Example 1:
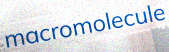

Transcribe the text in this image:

macromolecule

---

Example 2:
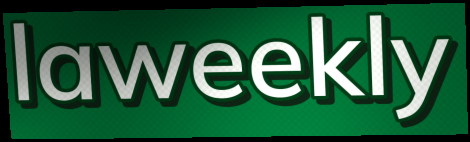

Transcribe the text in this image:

laweekly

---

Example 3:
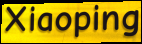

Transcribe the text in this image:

Xiaoping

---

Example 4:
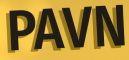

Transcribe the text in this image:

PAVN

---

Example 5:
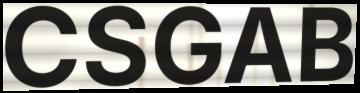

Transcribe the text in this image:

CSGAB